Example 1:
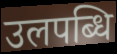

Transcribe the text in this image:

उलपब्धि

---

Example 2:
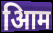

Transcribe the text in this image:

आिम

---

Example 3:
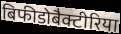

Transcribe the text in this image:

बिफीडोबैक्टीरिया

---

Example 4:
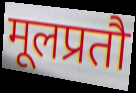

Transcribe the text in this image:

मूलप्रतौ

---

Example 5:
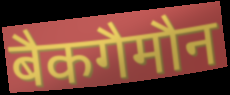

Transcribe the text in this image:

बैकगैमौन